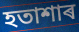
হতাশাৰ